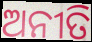
ଅନୀତି